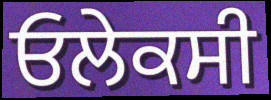
ਓਲੇਕਸੀ